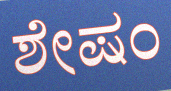
ಶೇಷಂ